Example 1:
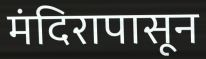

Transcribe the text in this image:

मंदिरापासून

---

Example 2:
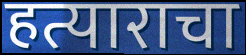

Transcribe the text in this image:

हत्याराचा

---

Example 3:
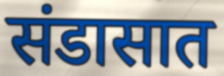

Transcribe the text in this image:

संडासात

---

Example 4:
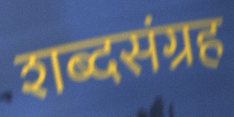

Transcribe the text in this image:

शब्दसंग्रह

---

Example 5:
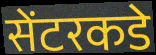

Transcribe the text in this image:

सेंटरकडे